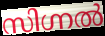
സിഗ്നൽ